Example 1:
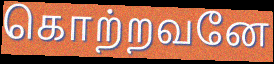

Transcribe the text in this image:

கொற்றவனே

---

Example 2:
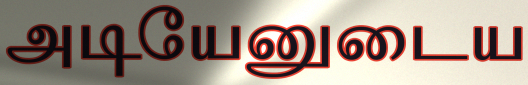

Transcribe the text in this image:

அடியேனுடைய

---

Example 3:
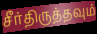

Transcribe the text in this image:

சீர்திருத்தவும்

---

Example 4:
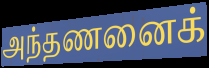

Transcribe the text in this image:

அந்தணனைக்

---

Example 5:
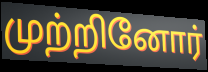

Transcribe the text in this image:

முற்றினோர்